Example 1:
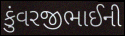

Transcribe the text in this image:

કુંવરજીભાઈની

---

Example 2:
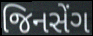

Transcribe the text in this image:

જિનસેંગ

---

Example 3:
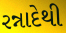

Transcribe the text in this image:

રન્નાદેથી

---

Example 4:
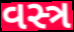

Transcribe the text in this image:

વસ્ત્ર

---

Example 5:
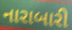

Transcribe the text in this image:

નારાબારી